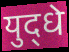
युद्धे